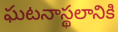
ఘటనాస్థలానికి